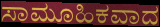
ಸಾಮೂಹಿಕವಾದ